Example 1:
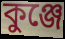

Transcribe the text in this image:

কুঞ্জে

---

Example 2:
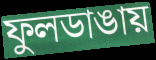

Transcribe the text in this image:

ফুলডাঙায়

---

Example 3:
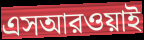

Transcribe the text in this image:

এসআরওয়াই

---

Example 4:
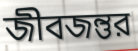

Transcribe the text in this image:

জীবজন্তুর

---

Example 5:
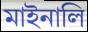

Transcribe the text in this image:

মাইনালি